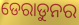
ଡେରାଡୁନର